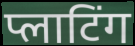
प्लाटिंग